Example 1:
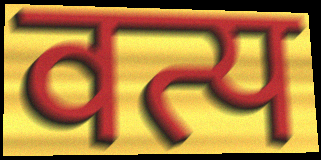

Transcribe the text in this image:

वत्य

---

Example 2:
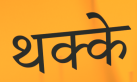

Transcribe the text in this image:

थक्के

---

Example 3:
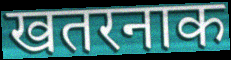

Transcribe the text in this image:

खतरनाक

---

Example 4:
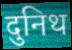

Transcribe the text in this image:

दुनिथ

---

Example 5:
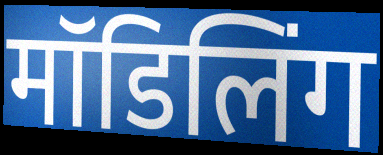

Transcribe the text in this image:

मॉडिलिंग